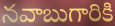
నవాబుగారికి